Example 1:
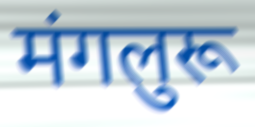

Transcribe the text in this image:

मंगलुरू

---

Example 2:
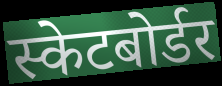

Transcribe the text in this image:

स्केटबोर्डर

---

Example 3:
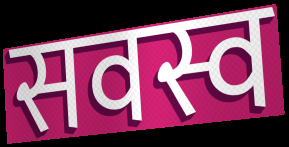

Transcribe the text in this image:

सवस्व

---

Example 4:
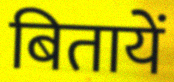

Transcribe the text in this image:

बितायें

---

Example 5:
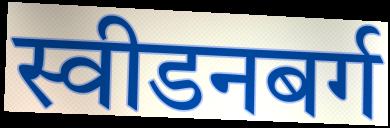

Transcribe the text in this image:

स्वीडनबर्ग